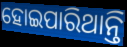
ହୋଇପାରିଥାନ୍ତି